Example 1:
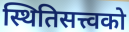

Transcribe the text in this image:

स्थितिसत्त्वको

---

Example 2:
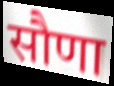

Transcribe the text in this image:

सौणा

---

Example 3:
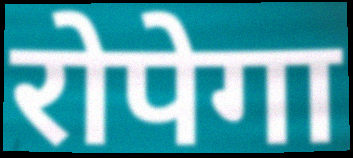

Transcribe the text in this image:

रोपेगा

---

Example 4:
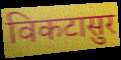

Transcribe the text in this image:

विकटासुर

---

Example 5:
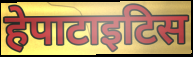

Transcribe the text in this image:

हेपाटाइटिस